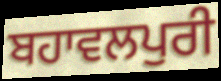
ਬਹਾਵਲਪੁਰੀ